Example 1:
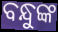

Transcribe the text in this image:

ବନ୍ଧୁଙ୍କ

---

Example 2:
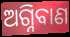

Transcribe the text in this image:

ଅଗ୍ନିବାଣ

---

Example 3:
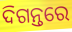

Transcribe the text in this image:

ଦିଗନ୍ତରେ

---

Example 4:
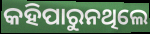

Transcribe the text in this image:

କହିପାରୁନଥିଲେ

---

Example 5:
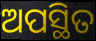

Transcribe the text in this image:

ଅପସ୍ଥିତ